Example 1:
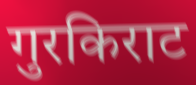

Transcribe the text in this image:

गुरकिराट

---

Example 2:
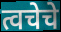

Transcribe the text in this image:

त्वचेचे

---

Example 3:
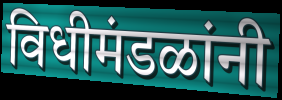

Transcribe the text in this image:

विधीमंडळांनी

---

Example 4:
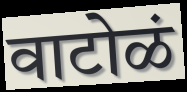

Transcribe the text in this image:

वाटोळं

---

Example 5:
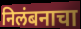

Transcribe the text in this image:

निलंबनाचा